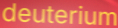
deuterium